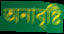
অনাবৃষ্টি